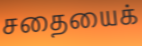
சதையைக்